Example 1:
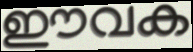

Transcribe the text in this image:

ഈവക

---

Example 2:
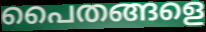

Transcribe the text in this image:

പൈതങ്ങളെ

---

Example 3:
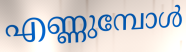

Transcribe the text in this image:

എണ്ണുമ്പോൾ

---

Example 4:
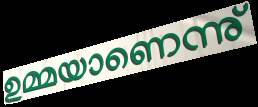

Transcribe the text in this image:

ഉമ്മയാണെന്നു്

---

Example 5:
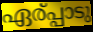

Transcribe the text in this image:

ഏര്പ്പാടു